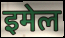
इमेल